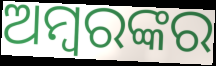
ଅମ୍ବରଙ୍କର